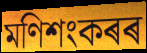
মণিশংকৰৰ